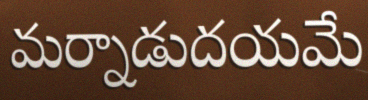
మర్నాడుదయమే